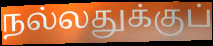
நல்லதுக்குப்